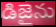
డిజైను